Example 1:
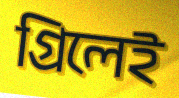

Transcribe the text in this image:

গ্রিলেই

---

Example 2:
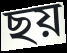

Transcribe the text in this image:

ছয়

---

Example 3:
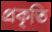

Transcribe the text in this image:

প্রকৃতি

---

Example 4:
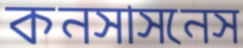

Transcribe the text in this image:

কনসাসনেস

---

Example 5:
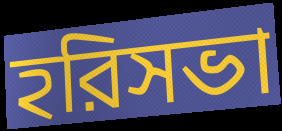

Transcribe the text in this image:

হরিসভা